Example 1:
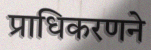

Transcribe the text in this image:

प्राधिकरणने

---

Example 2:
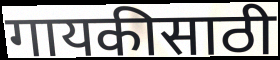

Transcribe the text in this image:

गायकीसाठी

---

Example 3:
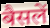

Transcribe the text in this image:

बैसलें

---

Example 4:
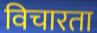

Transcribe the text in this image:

विचारता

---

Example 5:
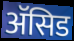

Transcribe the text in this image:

ॲसिड